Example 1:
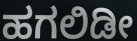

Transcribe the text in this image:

ಹಗಲಿಡೀ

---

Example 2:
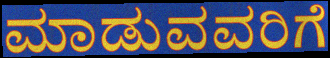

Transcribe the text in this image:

ಮಾಡುವವರಿಗೆ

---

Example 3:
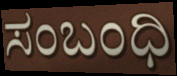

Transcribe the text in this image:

ಸಂಬಂಧಿ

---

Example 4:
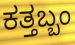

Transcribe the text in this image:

ಕತ್ತಬ್ಬಂ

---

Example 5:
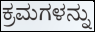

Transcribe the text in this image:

ಕ್ರಮಗಳನ್ನು